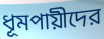
ধূমপায়ীদের